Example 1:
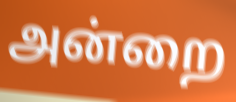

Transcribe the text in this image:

அன்றை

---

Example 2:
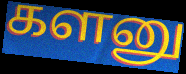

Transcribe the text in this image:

களனு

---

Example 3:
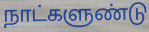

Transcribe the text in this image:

நாட்களுண்டு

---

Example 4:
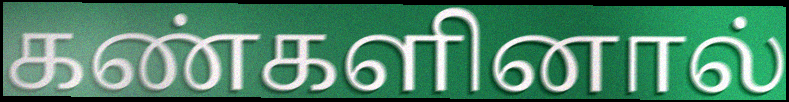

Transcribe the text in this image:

கண்களினால்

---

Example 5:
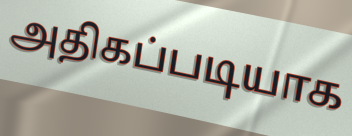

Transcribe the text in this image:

அதிகப்படியாக